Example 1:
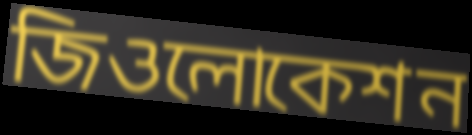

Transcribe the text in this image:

জিওলোকেশন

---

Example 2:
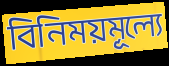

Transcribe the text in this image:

বিনিময়মূল্যে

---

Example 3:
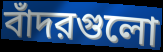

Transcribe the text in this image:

বাঁদরগুলো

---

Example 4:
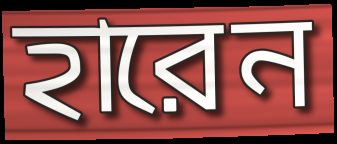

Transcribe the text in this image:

হারেন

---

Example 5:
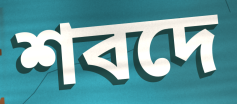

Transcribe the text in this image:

শবদে